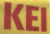
KEI